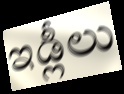
ఇడ్లీలు